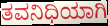
ತವನಿಧಿಯಾಗಿ